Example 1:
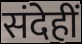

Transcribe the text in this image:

संदेहीं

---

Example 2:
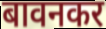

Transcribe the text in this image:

बावनकर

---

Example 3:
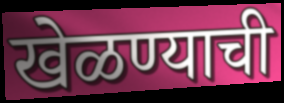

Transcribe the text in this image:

खेळण्याची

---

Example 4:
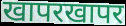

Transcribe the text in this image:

खापरखापर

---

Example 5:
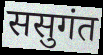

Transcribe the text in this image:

ससुगंत